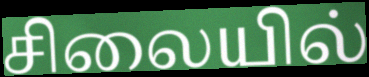
சிலையில்